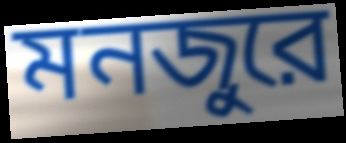
মনজুরে